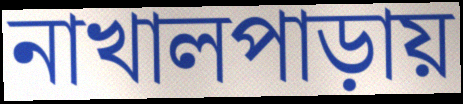
নাখালপাড়ায়